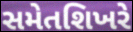
સમેતશિખરે